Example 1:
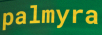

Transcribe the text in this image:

palmyra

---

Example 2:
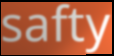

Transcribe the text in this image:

safty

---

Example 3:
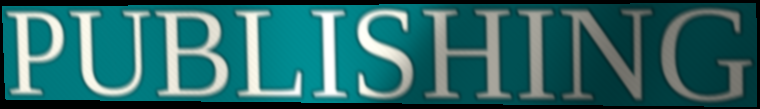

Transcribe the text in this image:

PUBLISHING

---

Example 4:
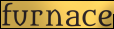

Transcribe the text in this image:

furnace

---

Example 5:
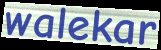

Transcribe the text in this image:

walekar